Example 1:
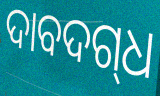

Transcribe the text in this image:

ଦାବଦଗ୍‍ଧ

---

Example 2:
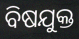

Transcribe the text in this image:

ବିଷଯୁକ୍ତ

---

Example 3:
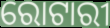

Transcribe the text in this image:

ରୋଟାରୀ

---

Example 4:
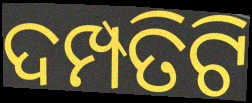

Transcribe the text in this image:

ଦମ୍ପତିଟି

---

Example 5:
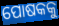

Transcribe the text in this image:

ପୋଷକକୁ